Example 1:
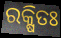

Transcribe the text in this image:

ରକ୍ଷିତଃ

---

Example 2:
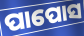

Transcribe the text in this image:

ପାପୋସ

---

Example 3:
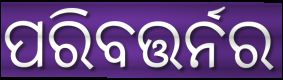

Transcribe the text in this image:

ପରିବତ୍ତର୍ନର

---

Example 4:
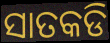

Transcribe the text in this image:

ସାତକଡି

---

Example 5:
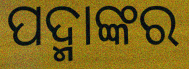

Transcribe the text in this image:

ପଦ୍ମାଙ୍କର